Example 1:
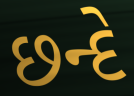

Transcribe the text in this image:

છન્દે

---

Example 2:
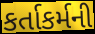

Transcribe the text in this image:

કર્તાકર્મની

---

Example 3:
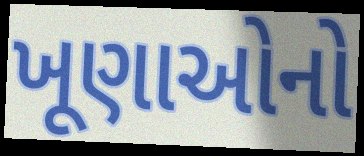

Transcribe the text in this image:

ખૂણાઓનો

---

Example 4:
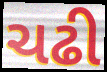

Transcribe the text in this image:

ચઢી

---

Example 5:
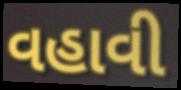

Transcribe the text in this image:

વહાવી